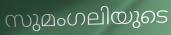
സുമംഗലിയുടെ